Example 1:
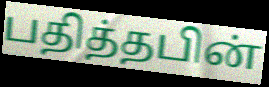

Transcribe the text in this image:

பதித்தபின்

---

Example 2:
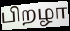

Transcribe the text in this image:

பிறழா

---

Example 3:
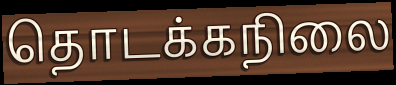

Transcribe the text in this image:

தொடக்கநிலை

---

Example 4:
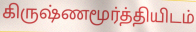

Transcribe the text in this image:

கிருஷ்ணமூர்த்தியிடம்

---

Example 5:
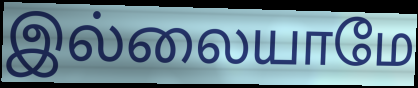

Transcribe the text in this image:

இல்லையாமே